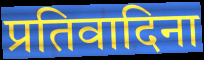
प्रतिवादिना